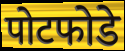
पोटफोडे